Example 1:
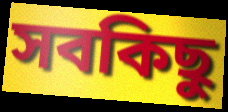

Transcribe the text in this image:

সবকিছু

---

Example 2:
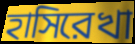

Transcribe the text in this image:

হাসিরেখা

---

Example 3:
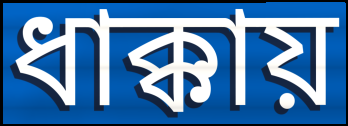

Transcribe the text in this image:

ধাক্কায়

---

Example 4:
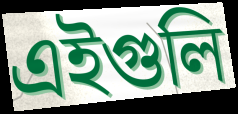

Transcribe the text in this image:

এইগুলি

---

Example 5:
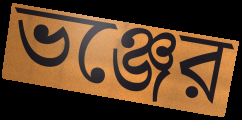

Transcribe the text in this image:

ভঞ্জের